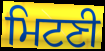
ਮਿਟਣੀ